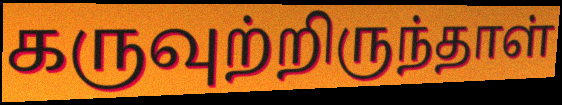
கருவுற்றிருந்தாள்